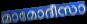
മാമോദീസാ